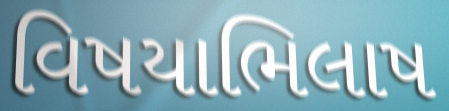
વિષયાભિલાષ